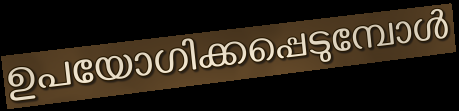
ഉപയോഗിക്കപ്പെടുമ്പോൾ